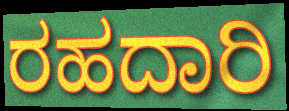
ರಹದಾರಿ